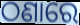
ଠଣାରେ